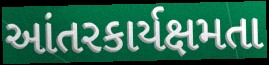
આંતરકાર્યક્ષમતા